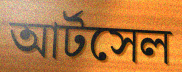
আর্টসেল